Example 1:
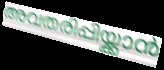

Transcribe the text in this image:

അവതരിപ്പിയ്ക്കാൻ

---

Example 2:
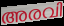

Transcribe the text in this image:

അരവി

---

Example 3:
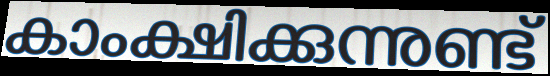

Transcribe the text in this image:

കാംക്ഷിക്കുന്നുണ്ട്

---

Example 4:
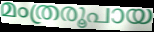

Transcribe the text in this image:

മംത്രരൂപായ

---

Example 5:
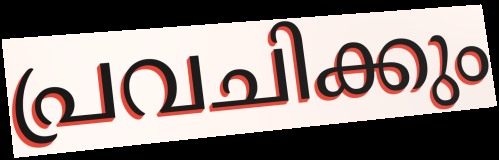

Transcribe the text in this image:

പ്രവചിക്കും